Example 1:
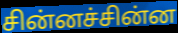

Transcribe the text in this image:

சின்னச்சின்ன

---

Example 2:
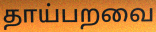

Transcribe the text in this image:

தாய்பறவை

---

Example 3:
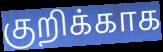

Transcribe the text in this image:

குறிக்காக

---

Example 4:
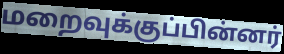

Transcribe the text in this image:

மறைவுக்குப்பின்னர்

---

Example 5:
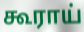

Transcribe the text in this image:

கூராய்